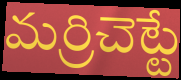
మర్రిచెట్టే